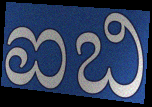
ಐಬಿ